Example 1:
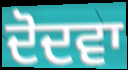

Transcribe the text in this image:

ਦੋਦਵਾ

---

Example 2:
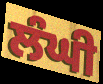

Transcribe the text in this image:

ਲੰਘੀ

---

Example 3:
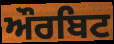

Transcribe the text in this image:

ਔਰਬਿਟ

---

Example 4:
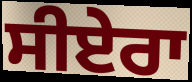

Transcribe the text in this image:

ਸੀਏਰਾ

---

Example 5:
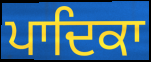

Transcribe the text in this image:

ਪਾਦਿਕਾ